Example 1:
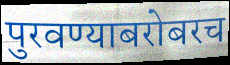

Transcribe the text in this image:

पुरवण्याबरोबरच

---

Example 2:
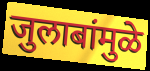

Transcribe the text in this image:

जुलाबांमुळे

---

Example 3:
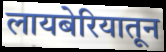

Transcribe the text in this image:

लायबेरियातून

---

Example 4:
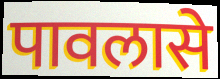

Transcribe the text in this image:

पावलासे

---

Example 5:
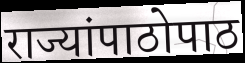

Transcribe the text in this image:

राज्यांपाठोपाठ